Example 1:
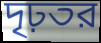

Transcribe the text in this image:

দৃঢ়তর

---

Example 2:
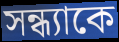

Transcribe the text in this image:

সন্ধ্যাকে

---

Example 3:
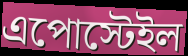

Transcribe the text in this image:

এপোস্টেইল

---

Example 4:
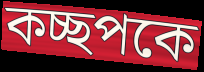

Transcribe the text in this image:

কচ্ছপকে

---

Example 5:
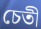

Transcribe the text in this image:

চেতী